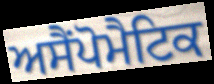
ਅਸੈਂਪੋਮੈਟਿਕ